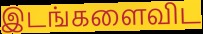
இடங்களைவிட